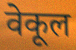
वेकूल